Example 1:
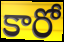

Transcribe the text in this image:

కారో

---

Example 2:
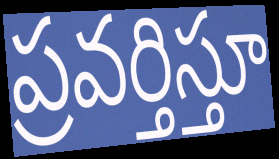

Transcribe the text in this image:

ప్రవర్తిస్తూ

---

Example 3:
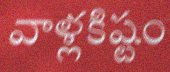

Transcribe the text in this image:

వాళ్లకిష్టం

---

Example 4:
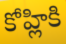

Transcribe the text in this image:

కోహ్లికి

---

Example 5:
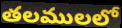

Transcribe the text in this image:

తలములలో